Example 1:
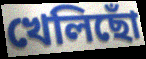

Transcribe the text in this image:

খেলিছোঁ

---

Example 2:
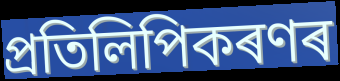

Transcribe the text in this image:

প্ৰতিলিপিকৰণৰ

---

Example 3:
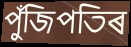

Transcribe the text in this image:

পুঁজিপতিৰ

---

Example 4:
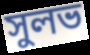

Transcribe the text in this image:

সুলভ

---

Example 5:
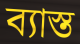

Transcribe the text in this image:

ব্যাস্ত